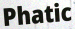
Phatic